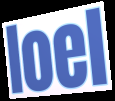
Ioel